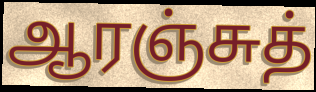
ஆரஞ்சுத்